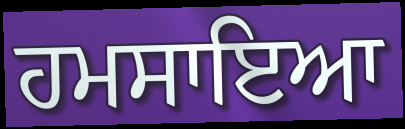
ਹਮਸਾਇਆ